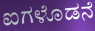
ಐಗಳೊಡನೆ